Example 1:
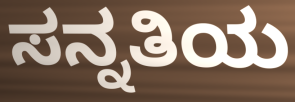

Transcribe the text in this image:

ಸನ್ನತಿಯ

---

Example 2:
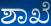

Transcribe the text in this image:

ಶಾಖೆ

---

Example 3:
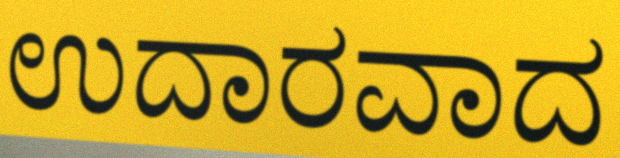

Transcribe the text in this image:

ಉದಾರವಾದ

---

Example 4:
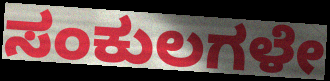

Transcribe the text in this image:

ಸಂಕುಲಗಳೇ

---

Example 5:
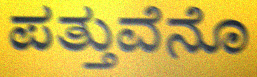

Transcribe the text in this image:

ಪತ್ತುವೆನೊ